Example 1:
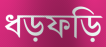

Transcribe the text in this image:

ধড়ফড়ি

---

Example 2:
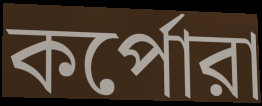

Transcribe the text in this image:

কর্পোরা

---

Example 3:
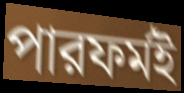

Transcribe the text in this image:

পারফর্মই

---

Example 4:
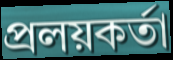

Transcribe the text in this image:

প্রলয়কর্তা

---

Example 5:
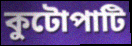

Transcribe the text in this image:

কুটোপাটি